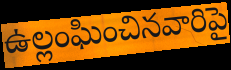
ఉల్లంఘించినవారిపై